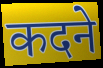
कदने